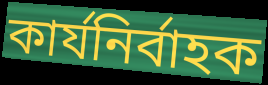
কাৰ্যনিৰ্বাহক